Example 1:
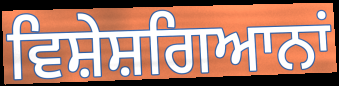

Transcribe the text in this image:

ਵਿਸ਼ੇਸ਼ਗਿਆਨਾਂ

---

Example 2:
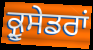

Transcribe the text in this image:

ਕ੍ਰੂਸੇਡਰਾਂ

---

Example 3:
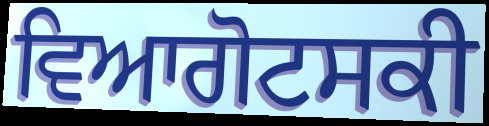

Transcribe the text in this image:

ਵਿਆਗੋਟਸਕੀ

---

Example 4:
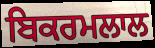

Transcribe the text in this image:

ਬਿਕਰਮਲਾਲ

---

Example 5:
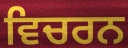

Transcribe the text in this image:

ਵਿਚਰਨ